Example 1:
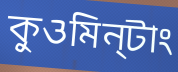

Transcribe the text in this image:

কুওমিন্‌টাং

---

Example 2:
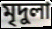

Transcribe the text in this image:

মৃদুলা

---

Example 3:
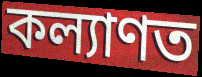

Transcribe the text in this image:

কল্যাণত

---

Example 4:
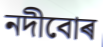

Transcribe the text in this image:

নদীবোৰ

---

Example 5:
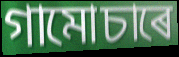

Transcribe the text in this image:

গামোচাৰে